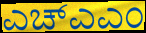
ಎಚ್ಎಎಂ